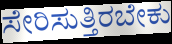
ಸೇರಿಸುತ್ತಿರಬೇಕು